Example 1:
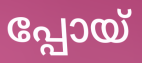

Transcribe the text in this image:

പ്പോയ്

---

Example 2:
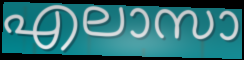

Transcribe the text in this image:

എലാസാ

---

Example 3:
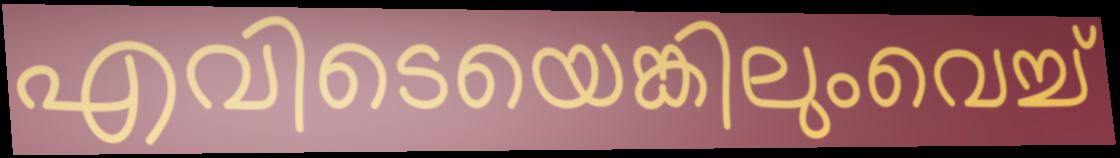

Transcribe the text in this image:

എവിടെയെങ്കിലുംവെച്ച്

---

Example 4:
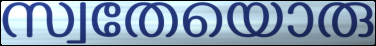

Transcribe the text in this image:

സ്വതേയൊരു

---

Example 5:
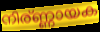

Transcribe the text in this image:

നിര്ണ്ണായക